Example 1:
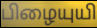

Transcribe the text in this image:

பிழையுயி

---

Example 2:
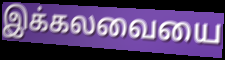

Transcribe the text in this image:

இக்கலவையை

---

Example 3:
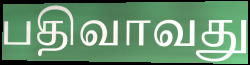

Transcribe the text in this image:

பதிவாவது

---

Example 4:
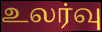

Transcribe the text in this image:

உலர்வு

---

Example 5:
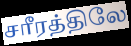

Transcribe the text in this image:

சரீரத்திலே